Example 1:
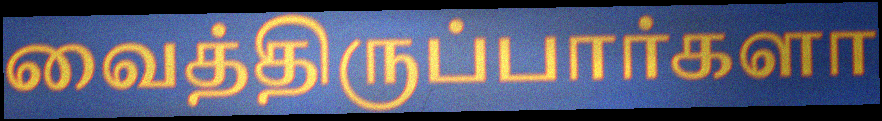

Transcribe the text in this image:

வைத்திருப்பார்களா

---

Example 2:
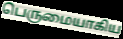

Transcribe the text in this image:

பெருமையாகிய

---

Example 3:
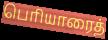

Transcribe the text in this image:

பெரியாரைத்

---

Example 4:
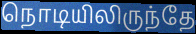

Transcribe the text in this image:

நொடியிலிருந்தே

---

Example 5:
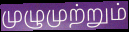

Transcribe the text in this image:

முழுமுற்றும்